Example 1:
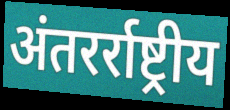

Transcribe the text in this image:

अंतरर्राष्ट्रीय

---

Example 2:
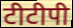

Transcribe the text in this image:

टीटीपी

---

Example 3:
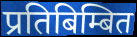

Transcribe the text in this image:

प्रतिबिम्बित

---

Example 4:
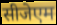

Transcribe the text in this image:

सीजेएम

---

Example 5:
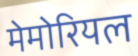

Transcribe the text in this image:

मेमोरियल